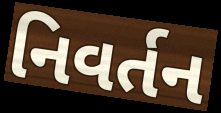
નિવર્તન